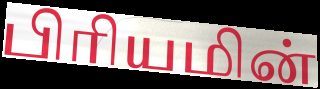
பிரியமின்